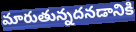
మారుతున్నదనడానికి